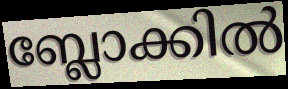
ബ്ലോക്കിൽ